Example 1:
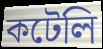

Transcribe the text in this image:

কটেলি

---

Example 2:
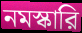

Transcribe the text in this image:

নমস্কারি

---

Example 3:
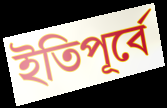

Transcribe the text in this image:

ইতিপূর্বে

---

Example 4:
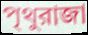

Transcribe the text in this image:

পৃথুরাজা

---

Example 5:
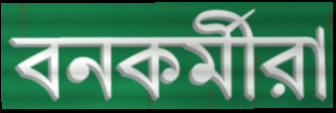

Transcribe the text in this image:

বনকর্মীরা